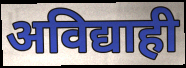
अविद्याही